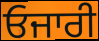
ਓਜਾਰੀ